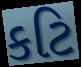
કટિ